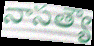
నాసత్యౌ